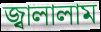
জ্বালালাম